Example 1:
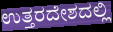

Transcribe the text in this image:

ಉತ್ತರದೇಶದಲ್ಲಿ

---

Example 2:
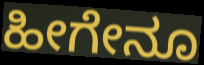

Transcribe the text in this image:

ಹೀಗೇನೂ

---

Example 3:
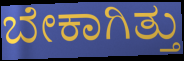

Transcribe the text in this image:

ಬೇಕಾಗಿತ್ತು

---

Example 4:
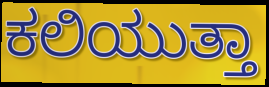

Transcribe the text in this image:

ಕಲಿಯುತ್ತಾ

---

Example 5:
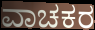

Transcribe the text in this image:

ವಾಚಕರ